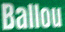
Ballou